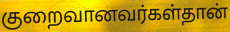
குறைவானவர்கள்தான்